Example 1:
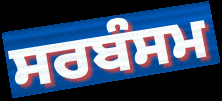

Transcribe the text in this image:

ਸਰਬੰਸਮ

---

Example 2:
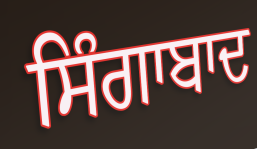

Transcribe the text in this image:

ਸਿੰਗਾਬਾਦ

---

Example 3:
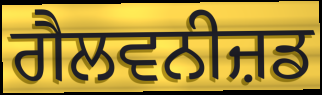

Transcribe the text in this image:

ਗੈਲਵਨੀਜ਼ਡ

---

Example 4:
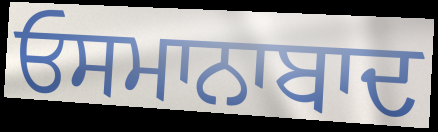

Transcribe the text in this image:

ਓਸਮਾਨਾਬਾਦ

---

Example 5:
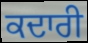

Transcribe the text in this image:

ਕਦਾਰੀ